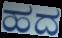
ಹದ